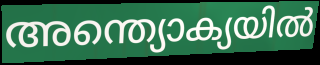
അന്ത്യൊക്യയിൽ